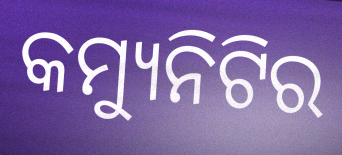
କମ୍ୟୁନିଟିର